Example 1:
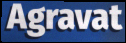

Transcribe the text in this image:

Agravat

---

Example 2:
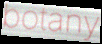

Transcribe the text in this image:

botany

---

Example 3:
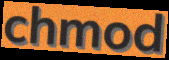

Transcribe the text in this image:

chmod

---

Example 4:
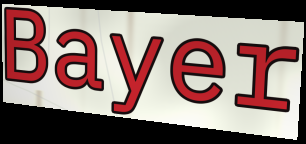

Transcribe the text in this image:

Bayer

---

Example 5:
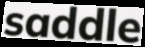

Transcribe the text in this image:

saddle